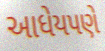
આધેયપણે